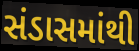
સંડાસમાંથી